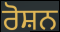
ਰੋਸ਼ਨ